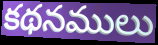
కథనములు